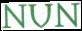
NUN